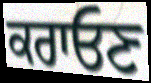
ਕਰਾਓਣ